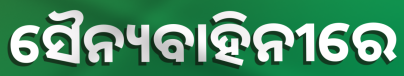
ସୈନ୍ୟବାହିନୀରେ